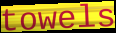
towels